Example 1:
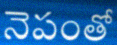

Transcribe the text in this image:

నెపంతో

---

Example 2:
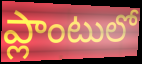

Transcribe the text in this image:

ప్లాంటులో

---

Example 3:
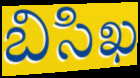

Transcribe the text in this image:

బిసిఖ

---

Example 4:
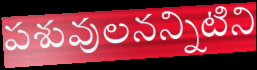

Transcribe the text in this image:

పశువులనన్నిటిని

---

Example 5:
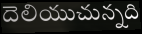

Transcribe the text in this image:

దెలియుచున్నది